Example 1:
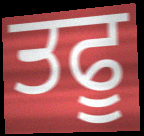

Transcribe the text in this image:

ਤਫੂ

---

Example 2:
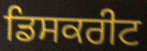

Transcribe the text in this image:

ਡਿਸਕਰੀਟ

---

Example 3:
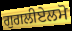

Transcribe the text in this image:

ਗੁਗਲੀਏਲਮੋ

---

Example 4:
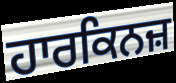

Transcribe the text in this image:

ਹਾਰਕਿਨਜ਼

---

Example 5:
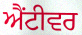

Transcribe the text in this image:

ਐਂਟੀਵਰ